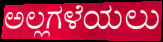
ಅಲ್ಲಗಳೆಯಲು